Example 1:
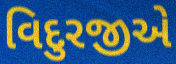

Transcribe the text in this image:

વિદુરજીએ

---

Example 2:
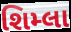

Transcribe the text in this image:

શિમ્લા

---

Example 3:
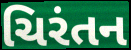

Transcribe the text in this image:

ચિરંતન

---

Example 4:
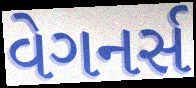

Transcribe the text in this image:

વેગનર્સ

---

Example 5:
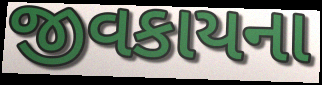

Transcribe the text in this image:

જીવકાયના